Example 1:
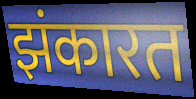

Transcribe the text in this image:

झंकारत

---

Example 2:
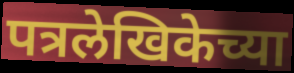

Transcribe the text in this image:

पत्रलेखिकेच्या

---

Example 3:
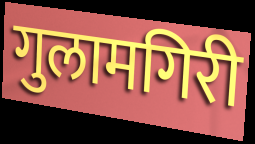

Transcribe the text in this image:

गुलामगिरी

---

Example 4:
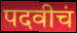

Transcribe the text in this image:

पदवीचं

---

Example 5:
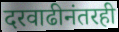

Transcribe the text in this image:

दरवाढीनंतरही